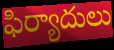
ఫిర్యాదులు